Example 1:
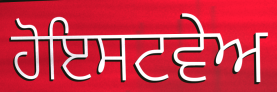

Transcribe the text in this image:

ਹੋਇਸਟਵੇਅ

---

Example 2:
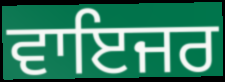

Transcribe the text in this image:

ਵਾਇਜਰ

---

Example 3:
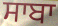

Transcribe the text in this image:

ਸਾਬਾ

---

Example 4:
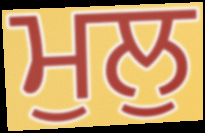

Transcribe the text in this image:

ਮੁਲੁ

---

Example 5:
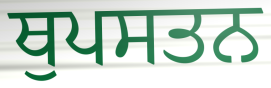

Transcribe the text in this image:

ਥੁਪਸਤਨ